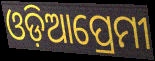
ଓଡ଼ିଆପ୍ରେମୀ